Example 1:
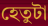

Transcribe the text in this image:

হেতুটা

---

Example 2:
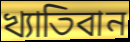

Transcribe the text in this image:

খ্যাতিবান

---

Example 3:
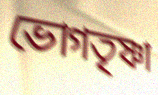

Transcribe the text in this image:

ভোগতৃষ্ণা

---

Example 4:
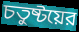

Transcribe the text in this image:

চতুষ্টয়ের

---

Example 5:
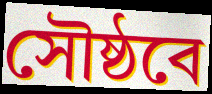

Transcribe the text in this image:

সৌষ্ঠবে